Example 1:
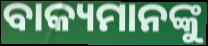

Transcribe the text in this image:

ବାକ୍ୟମାନଙ୍କୁ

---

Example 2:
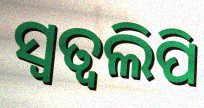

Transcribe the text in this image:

ସ୍ୱତ୍ୱଲିପି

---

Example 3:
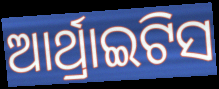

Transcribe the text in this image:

ଆର୍ଥ୍ରାଇଟିସ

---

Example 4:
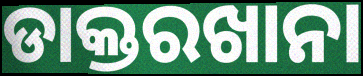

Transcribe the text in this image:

ଡାକ୍ତରଖାନା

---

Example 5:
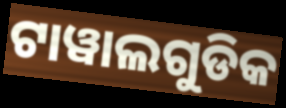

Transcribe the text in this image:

ଟାୱାଲଗୁଡିକ